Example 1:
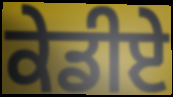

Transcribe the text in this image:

ਕੇਡੀਏ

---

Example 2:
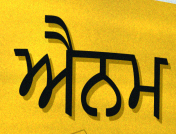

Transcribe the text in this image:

ਐਨਮ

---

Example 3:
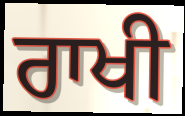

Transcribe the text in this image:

ਰਾਖੀ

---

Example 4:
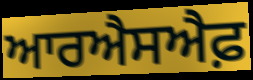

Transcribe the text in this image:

ਆਰਐਸਐਫ਼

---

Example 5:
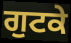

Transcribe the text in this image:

ਗੁਟਕੇ